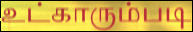
உட்காரும்படி